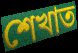
শেখাত